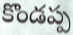
కొండప్ప